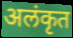
अलंकृत